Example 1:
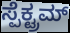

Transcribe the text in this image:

ಸ್ಪೆಕ್ಟ್ರಮ್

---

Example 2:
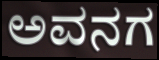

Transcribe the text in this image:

ಅವನಗ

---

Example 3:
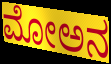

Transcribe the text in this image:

ಮೋಅನ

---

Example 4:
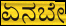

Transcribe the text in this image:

ಏನಬೇ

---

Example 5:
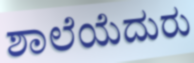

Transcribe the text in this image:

ಶಾಲೆಯೆದುರು